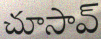
చూసావ్